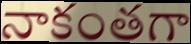
నాకంతగా